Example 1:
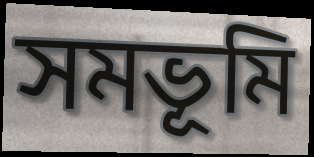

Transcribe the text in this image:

সমভূমি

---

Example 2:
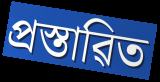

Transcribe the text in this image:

প্ৰস্তাৱিত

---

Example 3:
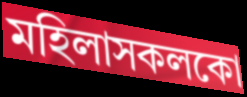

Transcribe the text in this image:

মহিলাসকলকো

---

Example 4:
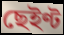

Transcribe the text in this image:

ছেইণ্ট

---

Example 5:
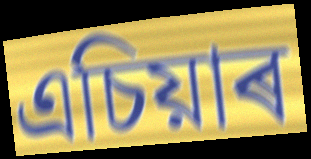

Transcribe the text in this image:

এচিয়াৰ